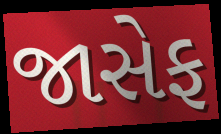
જાસેફ